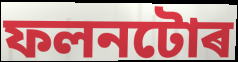
ফলনটোৰ